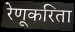
रेणूकरिता